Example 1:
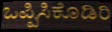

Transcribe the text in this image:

ಒಪ್ಪಿಸಿಕೊಡಿರಿ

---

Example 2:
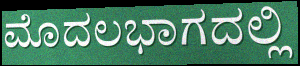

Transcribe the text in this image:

ಮೊದಲಭಾಗದಲ್ಲಿ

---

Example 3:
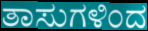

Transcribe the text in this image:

ತಾಸುಗಳಿಂದ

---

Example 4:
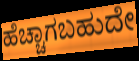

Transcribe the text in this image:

ಹೆಚ್ಚಾಗಬಹುದೇ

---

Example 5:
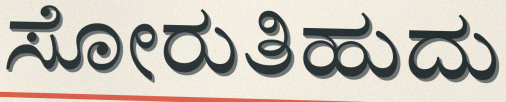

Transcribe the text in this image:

ಸೋರುತಿಹುದು